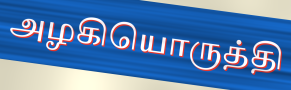
அழகியொருத்தி